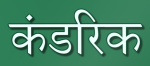
कंडरिक